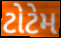
ટોટેમ